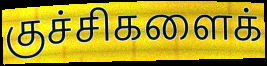
குச்சிகளைக்